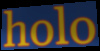
holo